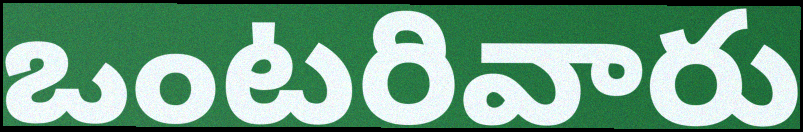
ఒంటరివారు